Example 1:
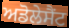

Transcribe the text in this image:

ਅਡੋਲੇਸੈਂਟ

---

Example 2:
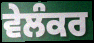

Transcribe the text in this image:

ਵੇਲੰਕਰ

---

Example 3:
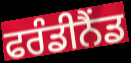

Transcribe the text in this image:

ਫਰੰਡੀਨੈਂਡ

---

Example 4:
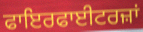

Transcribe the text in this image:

ਫਾਇਰਫਾਈਟਰਜ਼ਾਂ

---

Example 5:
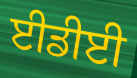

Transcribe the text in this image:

ਈਡੀਈ